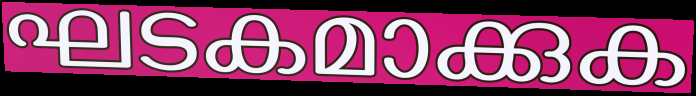
ഘടകമാക്കുക